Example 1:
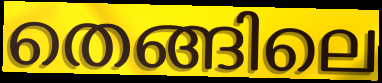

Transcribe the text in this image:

തെങ്ങിലെ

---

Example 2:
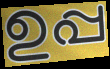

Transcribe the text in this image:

ഉപ്പ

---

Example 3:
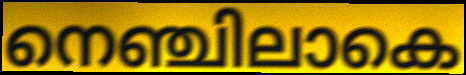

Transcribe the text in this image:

നെഞ്ചിലാകെ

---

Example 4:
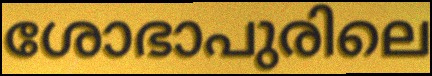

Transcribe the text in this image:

ശോഭാപുരിലെ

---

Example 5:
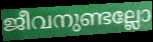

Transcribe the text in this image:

ജീവനുണ്ടല്ലോ